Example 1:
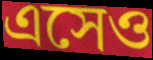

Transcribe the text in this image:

এসেও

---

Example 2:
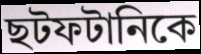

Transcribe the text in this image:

ছটফটানিকে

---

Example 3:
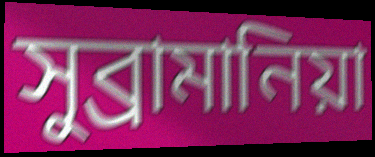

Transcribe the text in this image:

সুব্রামানিয়া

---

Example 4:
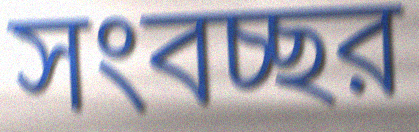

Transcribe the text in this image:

সংবচ্ছর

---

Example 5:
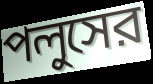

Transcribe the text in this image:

পলুসের